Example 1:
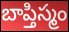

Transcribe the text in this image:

బాప్తిస్మం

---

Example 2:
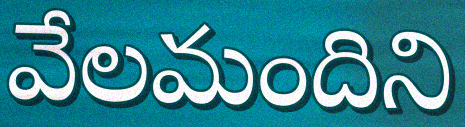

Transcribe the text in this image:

వేలమందిని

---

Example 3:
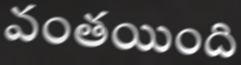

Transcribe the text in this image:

వంతయింది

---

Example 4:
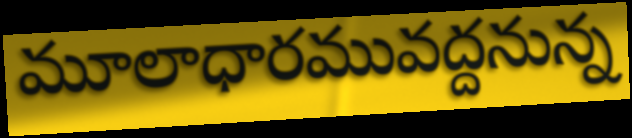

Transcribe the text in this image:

మూలాధారమువద్దనున్న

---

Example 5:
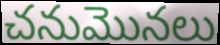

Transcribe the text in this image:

చనుమొనలు